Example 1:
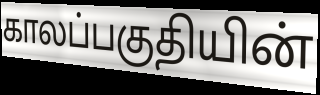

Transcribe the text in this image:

காலப்பகுதியின்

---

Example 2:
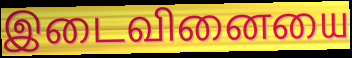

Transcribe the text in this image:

இடைவினையை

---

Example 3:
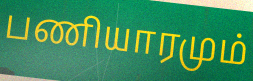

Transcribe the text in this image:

பணியாரமும்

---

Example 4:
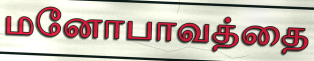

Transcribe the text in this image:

மனோபாவத்தை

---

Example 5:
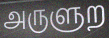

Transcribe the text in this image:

அருளுற